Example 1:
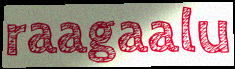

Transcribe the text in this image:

raagaalu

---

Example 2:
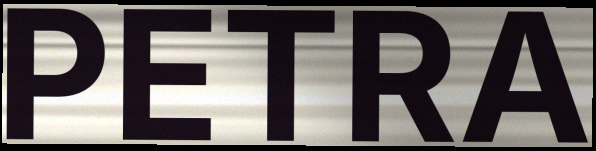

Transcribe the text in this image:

PETRA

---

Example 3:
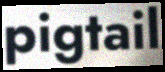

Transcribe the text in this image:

pigtail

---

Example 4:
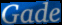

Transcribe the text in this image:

Gade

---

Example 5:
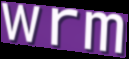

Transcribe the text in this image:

wrm